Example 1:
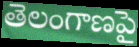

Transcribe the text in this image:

తెలంగాణపై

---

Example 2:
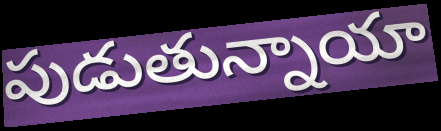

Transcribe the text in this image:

పుడుతున్నాయా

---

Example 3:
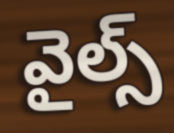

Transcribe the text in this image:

వైల్స్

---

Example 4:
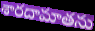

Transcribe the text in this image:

శారదామాతను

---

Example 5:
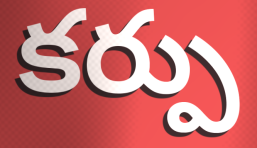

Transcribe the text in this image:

కర్పు